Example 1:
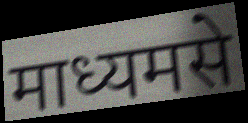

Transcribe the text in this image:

माध्यमसे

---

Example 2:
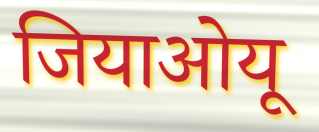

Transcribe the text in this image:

जियाओयू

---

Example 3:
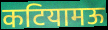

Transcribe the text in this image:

कटियामऊ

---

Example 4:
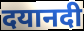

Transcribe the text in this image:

दयानदी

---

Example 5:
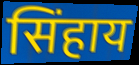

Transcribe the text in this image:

सिंहाय